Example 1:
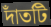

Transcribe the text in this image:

দাঁতটি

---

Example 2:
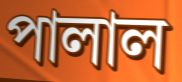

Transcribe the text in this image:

পালাল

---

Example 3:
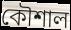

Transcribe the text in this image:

কৌশাল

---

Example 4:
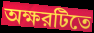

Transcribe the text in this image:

অক্ষরটিতে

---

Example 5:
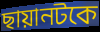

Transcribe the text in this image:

ছায়ানটকে